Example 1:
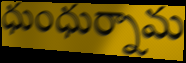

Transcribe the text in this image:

ధుంధుర్నామ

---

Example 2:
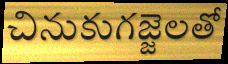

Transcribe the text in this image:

చినుకుగజ్జెలతో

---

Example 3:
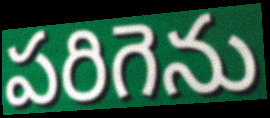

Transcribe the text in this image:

పరిగెను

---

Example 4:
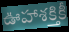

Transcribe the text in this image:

ఊహాశక్తికీ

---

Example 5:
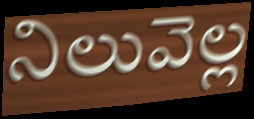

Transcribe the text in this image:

నిలువెల్ల